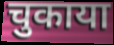
चुकाया